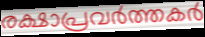
രക്ഷാപ്രവർത്തകർ